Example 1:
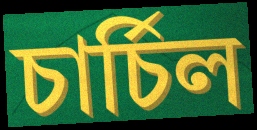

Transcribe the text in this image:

চাৰ্চিল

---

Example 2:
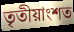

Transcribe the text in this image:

তৃতীয়াংশত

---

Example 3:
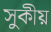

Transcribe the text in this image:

সুকীয়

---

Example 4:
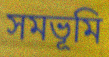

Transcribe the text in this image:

সমভূমি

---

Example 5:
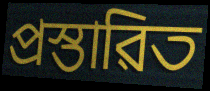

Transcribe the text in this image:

প্ৰস্তাৱিত